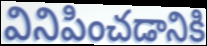
వినిపించడానికి